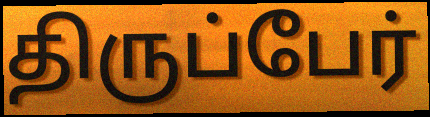
திருப்பேர்